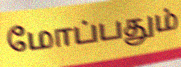
மோப்பதும்